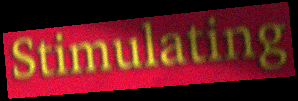
Stimulating